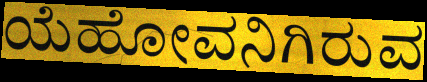
ಯೆಹೋವನಿಗಿರುವ